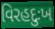
વિરહદુઃખ